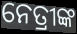
ନେତ୍ରୀଙ୍କ